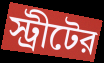
স্ট্রীটের